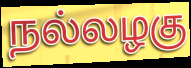
நல்லழகு